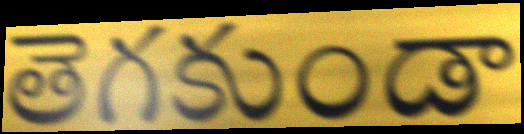
తెగకుండా